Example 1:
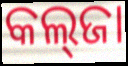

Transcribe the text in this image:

କଲ୍‌ଜା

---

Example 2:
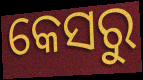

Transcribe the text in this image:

କେସରୁ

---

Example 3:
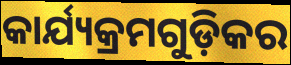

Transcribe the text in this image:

କାର୍ଯ୍ୟକ୍ରମଗୁଡ଼ିକର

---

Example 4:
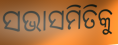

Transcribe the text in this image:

ସଭାସମିତିକୁ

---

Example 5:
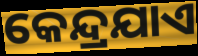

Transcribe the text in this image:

କେନ୍ଦ୍ରଯାଏ